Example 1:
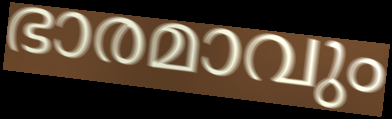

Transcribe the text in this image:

ഭാരമാവും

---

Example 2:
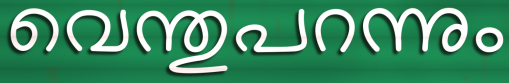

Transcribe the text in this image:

വെന്തുപറന്നും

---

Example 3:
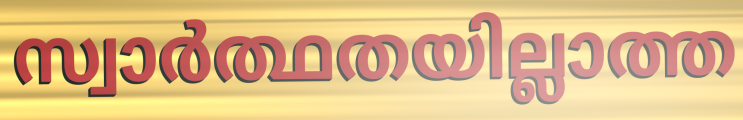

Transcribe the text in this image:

സ്വാർത്ഥതയില്ലാത്ത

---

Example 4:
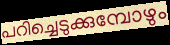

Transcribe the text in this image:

പറിച്ചെടുക്കുമ്പോഴും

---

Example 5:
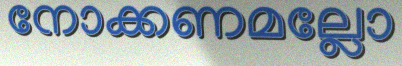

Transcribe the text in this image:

നോക്കണമല്ലോ